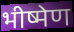
भीष्मेण